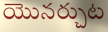
యొనర్చుట